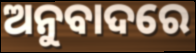
ଅନୁବାଦରେ